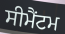
ਸੀਮੈਂਟਮ